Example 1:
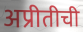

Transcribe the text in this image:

अप्रीतीची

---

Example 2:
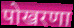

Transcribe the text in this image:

पोखरणा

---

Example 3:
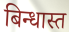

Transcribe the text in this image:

बिन्धास्त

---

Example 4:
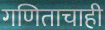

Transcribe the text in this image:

गणिताचाही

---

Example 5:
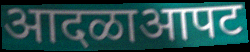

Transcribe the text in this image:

आदळाआपट